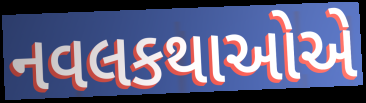
નવલકથાઓએ